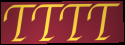
TTTT